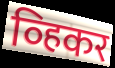
व्हिकर